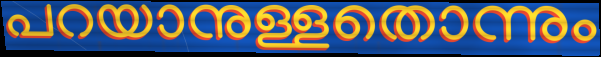
പറയാനുള്ളതൊന്നും